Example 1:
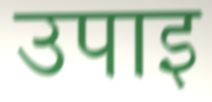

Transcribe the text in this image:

उपाइ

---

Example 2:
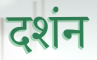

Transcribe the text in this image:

दशंन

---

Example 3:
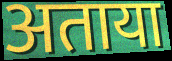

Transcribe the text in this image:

अताया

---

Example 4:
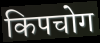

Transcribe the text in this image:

किपचोग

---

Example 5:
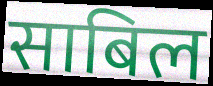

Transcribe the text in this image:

साबिल